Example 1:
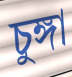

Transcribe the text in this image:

চুঙ্গা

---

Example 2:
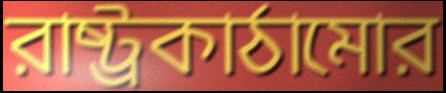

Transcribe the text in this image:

রাষ্ট্রকাঠামোর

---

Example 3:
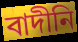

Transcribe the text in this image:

বাদীনি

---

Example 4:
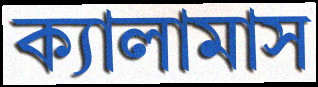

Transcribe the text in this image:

ক্যালামাস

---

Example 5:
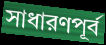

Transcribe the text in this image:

সাধারণপূর্ব